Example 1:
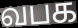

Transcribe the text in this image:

வபக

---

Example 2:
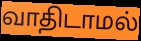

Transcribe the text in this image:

வாதிடாமல்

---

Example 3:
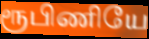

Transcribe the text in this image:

ரூபிணியே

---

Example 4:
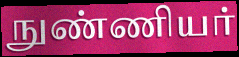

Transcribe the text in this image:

நுண்ணியர்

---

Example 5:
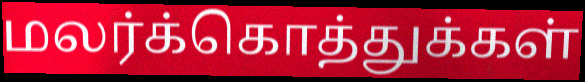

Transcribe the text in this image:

மலர்க்கொத்துக்கள்